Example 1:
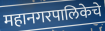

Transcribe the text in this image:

महानगरपालिकेचे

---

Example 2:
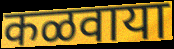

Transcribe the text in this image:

कळवाया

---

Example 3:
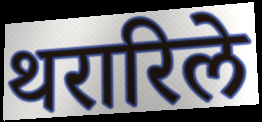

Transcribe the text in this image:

थरारिले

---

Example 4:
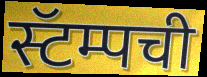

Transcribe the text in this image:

स्टॅम्पची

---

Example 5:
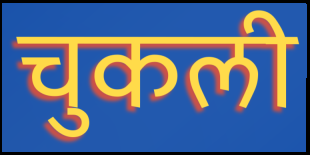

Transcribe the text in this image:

चुकली